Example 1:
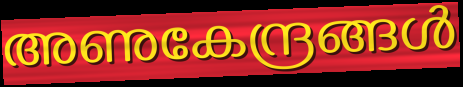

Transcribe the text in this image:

അണുകേന്ദ്രങ്ങൾ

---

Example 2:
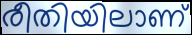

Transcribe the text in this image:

രീതിയിലാണ്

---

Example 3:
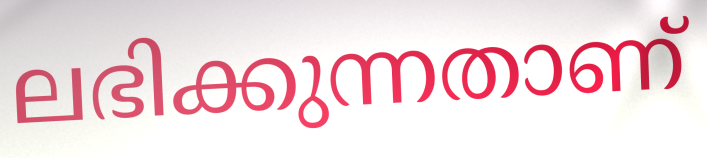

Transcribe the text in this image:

ലഭിക്കുന്നതാണ്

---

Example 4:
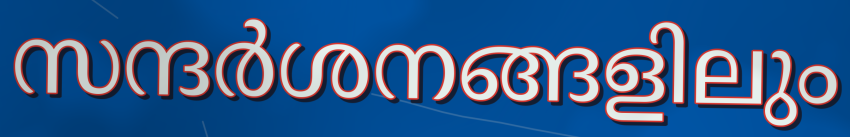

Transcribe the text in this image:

സന്ദർശനങ്ങളിലും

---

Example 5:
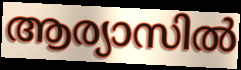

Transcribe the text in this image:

ആര്യാസിൽ